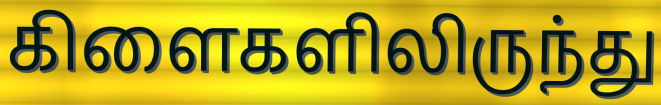
கிளைகளிலிருந்து